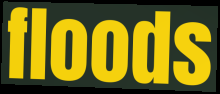
floods